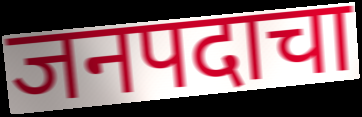
जनपदाचा